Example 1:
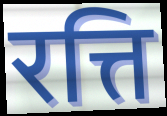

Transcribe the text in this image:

रत्ति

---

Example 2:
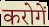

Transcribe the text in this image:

करोगें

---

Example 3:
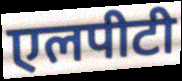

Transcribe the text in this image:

एलपीटी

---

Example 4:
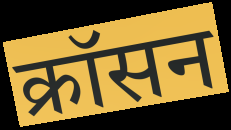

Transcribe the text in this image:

क्रॉसन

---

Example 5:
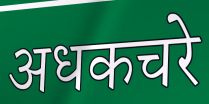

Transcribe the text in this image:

अधकचरे